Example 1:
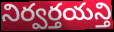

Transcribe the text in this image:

నిర్వర్తయన్తి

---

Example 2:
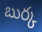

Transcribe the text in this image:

బుర్క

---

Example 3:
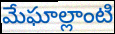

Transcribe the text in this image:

మేఘాల్లాంటి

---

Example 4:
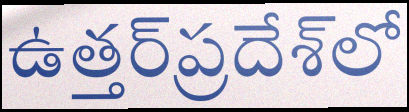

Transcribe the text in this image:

ఉత్తర్‌ప్రదేశ్‌లో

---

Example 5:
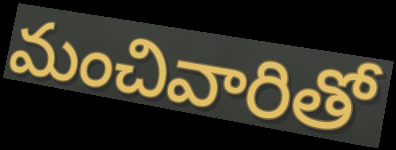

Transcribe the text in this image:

మంచివారితో